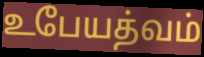
உபேயத்வம்